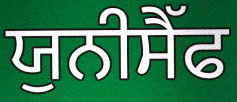
ਯੁਨੀਸੈੱਫ